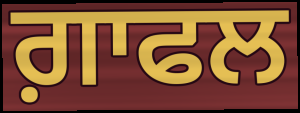
ਗ਼ਾਫਲ